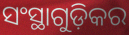
ସଂସ୍ଥାଗୁଡ଼ିକର